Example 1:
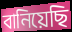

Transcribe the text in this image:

বানিয়েছি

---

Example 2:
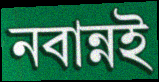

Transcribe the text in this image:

নবান্নই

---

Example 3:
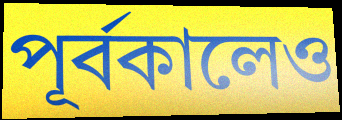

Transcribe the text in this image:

পূর্বকালেও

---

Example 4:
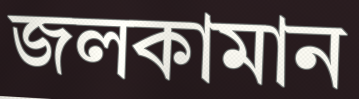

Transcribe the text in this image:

জলকামান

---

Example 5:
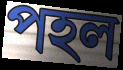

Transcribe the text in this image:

পহল